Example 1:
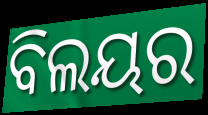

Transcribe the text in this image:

ବିଲୟର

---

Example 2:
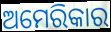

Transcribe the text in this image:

ଅମେରିକାର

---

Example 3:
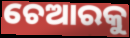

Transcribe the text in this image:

ଚେଆରକୁ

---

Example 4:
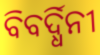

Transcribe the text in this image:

ବିବର୍ଦ୍ଧିନୀ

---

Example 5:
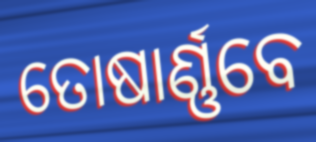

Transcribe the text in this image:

ତୋଷାର୍ଣ୍ଣବେ